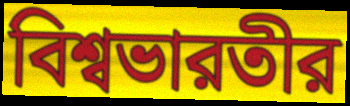
বিশ্বভারতীর